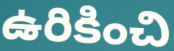
ఉరికించి